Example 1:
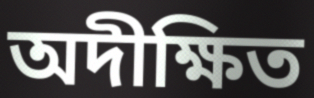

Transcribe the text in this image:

অদীক্ষিত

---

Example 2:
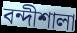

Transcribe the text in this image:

বন্দীশালা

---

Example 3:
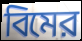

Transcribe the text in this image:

বিমের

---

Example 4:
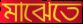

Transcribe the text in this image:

মাঝেতে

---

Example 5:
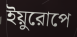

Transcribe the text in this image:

ইয়ুরোপে